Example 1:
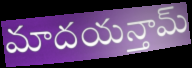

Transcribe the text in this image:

మాదయన్తామ్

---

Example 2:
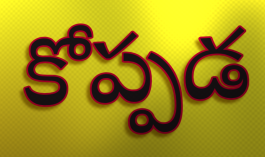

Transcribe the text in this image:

కోప్పడ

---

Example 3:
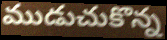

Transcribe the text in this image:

ముడుచుకొన్న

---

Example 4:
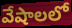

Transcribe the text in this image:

వేషాలలో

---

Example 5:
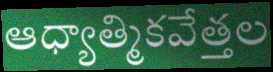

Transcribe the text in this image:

ఆధ్యాత్మికవేత్తల